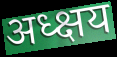
अध्क्षय